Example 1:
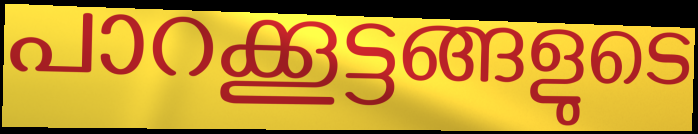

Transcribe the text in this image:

പാറക്കൂട്ടങ്ങളുടെ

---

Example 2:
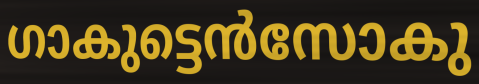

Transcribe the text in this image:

ഗാകുട്ടെൻസോകു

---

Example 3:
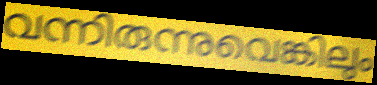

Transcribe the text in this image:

വന്നിരുന്നുവെങ്കിലും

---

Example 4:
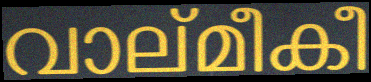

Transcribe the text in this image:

വാല്മീകീ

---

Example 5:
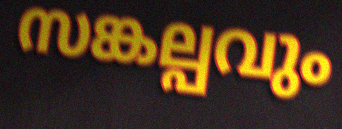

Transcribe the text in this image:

സങ്കല്പവും